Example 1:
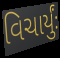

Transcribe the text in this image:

વિચાર્યુંઃ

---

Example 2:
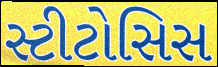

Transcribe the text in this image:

સ્ટીટોસિસ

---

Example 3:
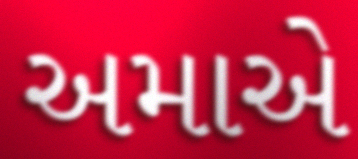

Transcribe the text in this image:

અમાએ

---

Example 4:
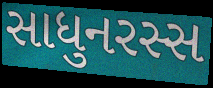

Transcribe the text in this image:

સાધુનરસ્સ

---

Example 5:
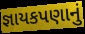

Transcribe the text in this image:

જ્ઞાયકપણાનું